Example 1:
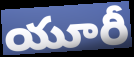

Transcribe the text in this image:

యూరీ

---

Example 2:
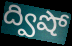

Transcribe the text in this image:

ద్విషో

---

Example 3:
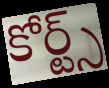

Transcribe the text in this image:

కోర్ట్స్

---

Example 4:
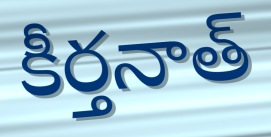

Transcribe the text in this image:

కీర్తనాత్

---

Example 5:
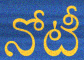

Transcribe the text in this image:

నోటీ